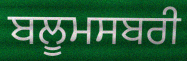
ਬਲੂਮਸਬਰੀ